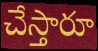
చేస్తారూ